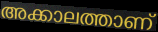
അക്കാലത്താണ്